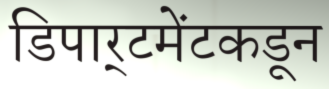
डिपार्टमेंटकडून